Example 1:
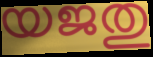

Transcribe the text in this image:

യജതു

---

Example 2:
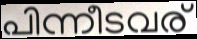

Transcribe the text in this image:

പിന്നീടവര്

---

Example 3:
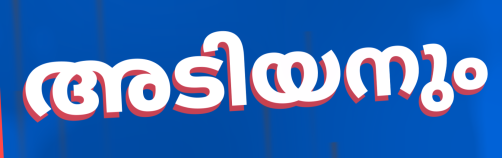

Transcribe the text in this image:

അടിയനും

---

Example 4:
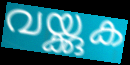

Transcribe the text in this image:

വയ്ക്കുക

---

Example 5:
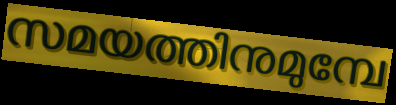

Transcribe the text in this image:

സമയത്തിനുമുമ്പേ